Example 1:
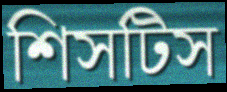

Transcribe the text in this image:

শিসটিস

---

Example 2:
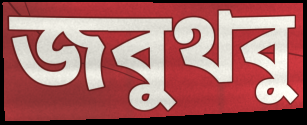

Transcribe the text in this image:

জবুথবু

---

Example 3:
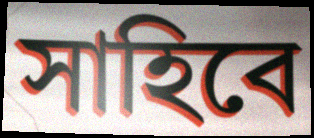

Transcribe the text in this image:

সাহিবে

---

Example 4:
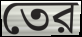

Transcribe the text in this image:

তের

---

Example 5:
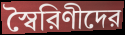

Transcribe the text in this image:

স্বৈরিণীদের